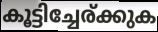
കൂട്ടിച്ചേര്ക്കുക